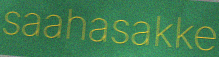
saahasakke